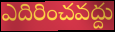
ఎదిరించవద్దు